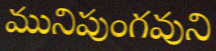
మునిపుంగవుని